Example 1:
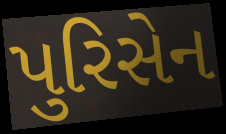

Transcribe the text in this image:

પુરિસેન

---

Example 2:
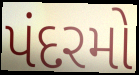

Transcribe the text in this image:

પંદરમો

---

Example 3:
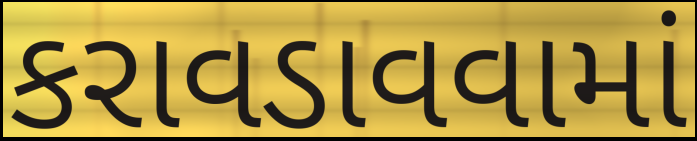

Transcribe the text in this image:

કરાવડાવવામાં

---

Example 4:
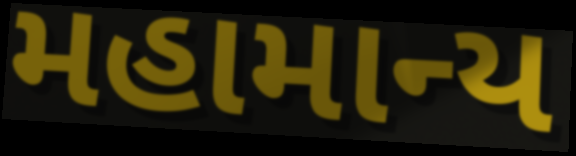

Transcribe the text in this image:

મહામાન્ય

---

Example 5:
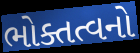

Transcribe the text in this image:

ભોક્તત્વનો